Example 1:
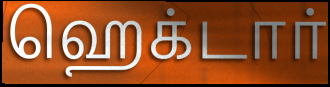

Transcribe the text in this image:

ஹெக்டார்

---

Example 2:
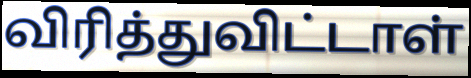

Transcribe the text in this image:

விரித்துவிட்டாள்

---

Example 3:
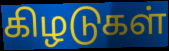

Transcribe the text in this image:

கிழடுகள்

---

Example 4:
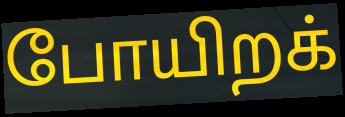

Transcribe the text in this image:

போயிறக்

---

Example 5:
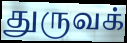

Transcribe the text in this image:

துருவக்